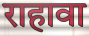
राहावा